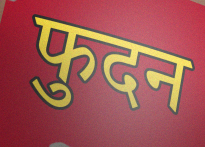
फुदन